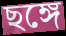
ছঙ্গে